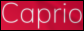
Caprio